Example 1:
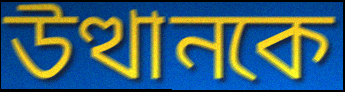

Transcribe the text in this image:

উত্থানকে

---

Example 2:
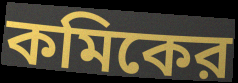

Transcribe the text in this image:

কমিকের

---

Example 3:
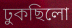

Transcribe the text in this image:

ঢুকছিলো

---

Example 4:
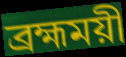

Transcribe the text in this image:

ব্রহ্মময়ী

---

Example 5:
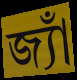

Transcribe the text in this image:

জ্যাঁ